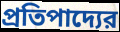
প্রতিপাদ্যের